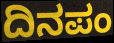
ದಿನಪಂ